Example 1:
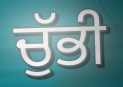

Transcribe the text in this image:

ਚੁੱਭੀ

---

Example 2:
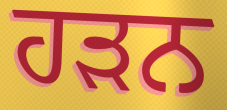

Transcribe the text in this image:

ਹੜਨ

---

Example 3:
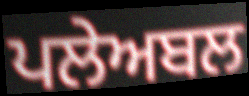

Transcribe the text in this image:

ਪਲੇਅਬਲ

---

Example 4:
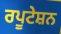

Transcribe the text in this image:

ਰਪੂਟੇਸ਼ਨ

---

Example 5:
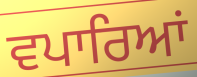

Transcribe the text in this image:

ਵਪਾਰਿਆਂ